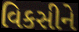
વિકસીને